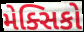
મેક્સિકો